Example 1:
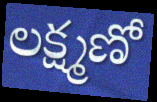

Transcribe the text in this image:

లక్ష్మణో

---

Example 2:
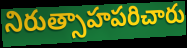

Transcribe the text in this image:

నిరుత్సాహపరిచారు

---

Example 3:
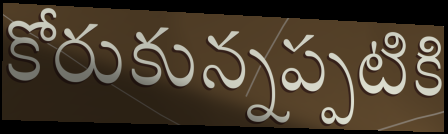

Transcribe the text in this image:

కోరుకున్నప్పటికి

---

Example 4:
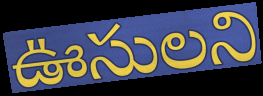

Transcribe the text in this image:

ఊసులని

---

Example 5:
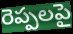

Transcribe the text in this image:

రెప్పలపై